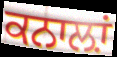
ਕਨਾਲ਼ਾਂ